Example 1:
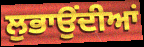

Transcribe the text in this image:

ਲੁਭਾਉਂਦੀਆਂ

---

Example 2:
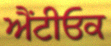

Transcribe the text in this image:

ਐਂਟੀਓਕ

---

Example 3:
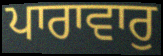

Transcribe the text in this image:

ਪਾਰਾਵਾਰੁ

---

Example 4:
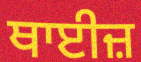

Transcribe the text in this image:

ਥਾਈਜ਼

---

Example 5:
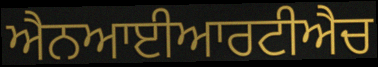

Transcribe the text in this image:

ਐਨਆਈਆਰਟੀਐਚ